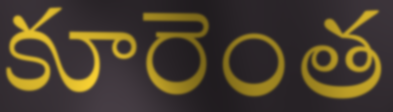
కూరెంత